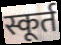
स्कूर्त